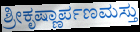
ಶ್ರೀಕೃಷ್ಣಾರ್ಪಣಮಸ್ತು